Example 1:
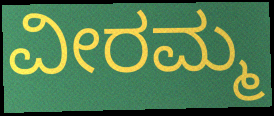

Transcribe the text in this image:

ವೀರಮ್ಮ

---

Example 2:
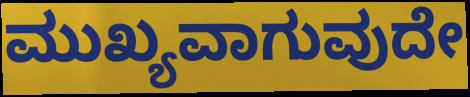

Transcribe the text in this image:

ಮುಖ್ಯವಾಗುವುದೇ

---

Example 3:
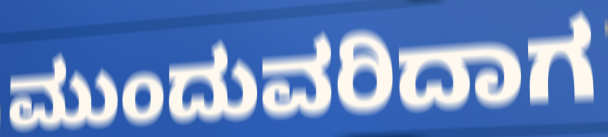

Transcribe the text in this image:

ಮುಂದುವರಿದಾಗ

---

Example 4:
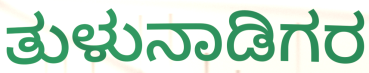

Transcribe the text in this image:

ತುಳುನಾಡಿಗರ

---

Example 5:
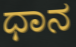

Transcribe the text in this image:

ಧಾನ